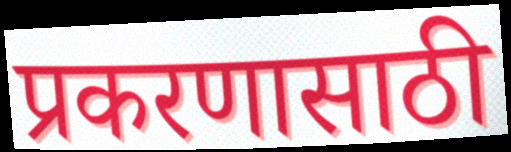
प्रकरणासाठी